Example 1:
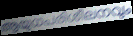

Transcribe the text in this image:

ആയുധപരിശീലനവും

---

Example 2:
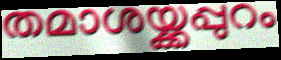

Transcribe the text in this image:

തമാശയ്ക്കപ്പുറം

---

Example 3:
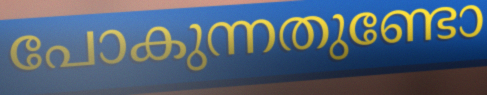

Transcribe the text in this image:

പോകുന്നതുണ്ടോ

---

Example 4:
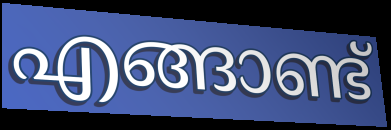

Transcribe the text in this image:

എങ്ങാണ്ട്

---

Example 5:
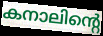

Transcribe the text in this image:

കനാലിന്റെ